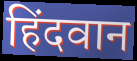
हिंदवान